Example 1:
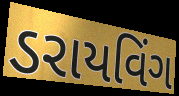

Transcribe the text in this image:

ડરાયવિંગ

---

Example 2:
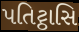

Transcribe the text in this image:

પતિટ્ઠાસિ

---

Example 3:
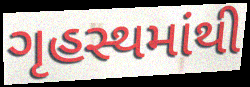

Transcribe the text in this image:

ગૃહસ્થમાંથી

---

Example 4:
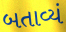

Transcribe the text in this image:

બતાવ્યં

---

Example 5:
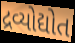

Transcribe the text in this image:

દ્રવ્યોદ્યોત